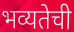
भव्यतेची